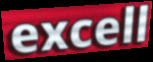
excell